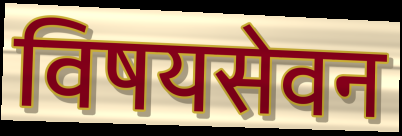
विषयसेवन